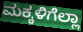
ಮಕ್ಕಳಿಗೆಲ್ಲಾ